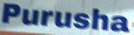
Purusha